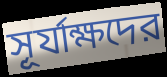
সূর্যাক্ষদের